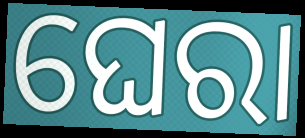
ଘେରା